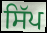
ਸਿੱਪ